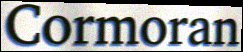
Cormoran